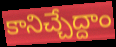
కానిచ్చేద్దాం